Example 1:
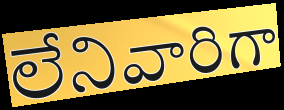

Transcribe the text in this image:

లేనివారిగా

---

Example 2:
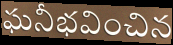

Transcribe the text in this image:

ఘనీభవించిన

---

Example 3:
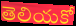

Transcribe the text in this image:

తెలియకో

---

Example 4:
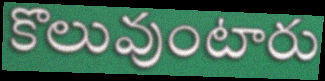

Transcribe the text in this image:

కొలువుంటారు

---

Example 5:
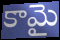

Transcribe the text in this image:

కామై